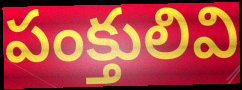
పంక్తులివి